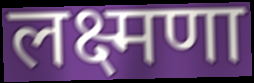
लक्ष्मणा